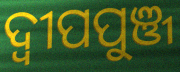
ଦ୍ୱୀପପୁଞ୍ଜ